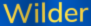
Wilder